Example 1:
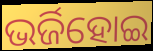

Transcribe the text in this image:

ଭର୍ଜିହୋଇ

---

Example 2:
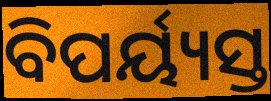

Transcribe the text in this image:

ବିପର୍ୟ୍ୟସ୍ତ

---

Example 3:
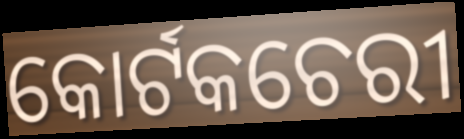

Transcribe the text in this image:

କୋର୍ଟକଚେରୀ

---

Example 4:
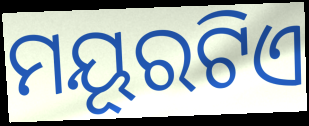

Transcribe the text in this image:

ମୟୂରଟିଏ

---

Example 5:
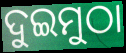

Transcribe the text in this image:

ଦୁଇମୁଠା